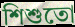
শিশুতো